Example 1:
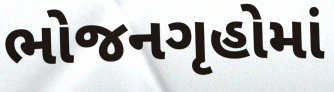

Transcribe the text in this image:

ભોજનગૃહોમાં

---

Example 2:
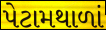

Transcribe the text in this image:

પેટામથાળાં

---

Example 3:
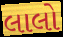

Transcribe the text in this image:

લાલો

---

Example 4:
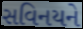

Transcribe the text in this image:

સવિનયને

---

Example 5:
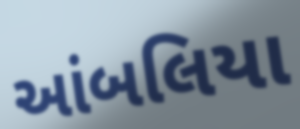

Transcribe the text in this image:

આંબલિયા